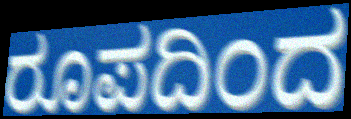
ರೂಪದಿಂದ